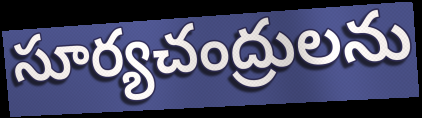
సూర్యచంద్రులను